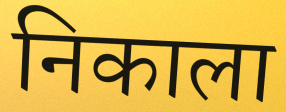
निकाला